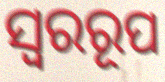
ସ୍ୱରରୂପ